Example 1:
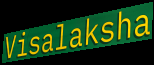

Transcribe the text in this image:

Visalaksha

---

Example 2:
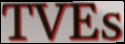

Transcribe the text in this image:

TVEs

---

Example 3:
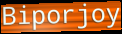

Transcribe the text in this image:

Biporjoy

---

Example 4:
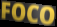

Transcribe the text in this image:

FOCO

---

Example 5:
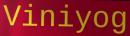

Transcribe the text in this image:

Viniyog